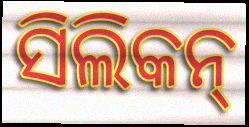
ସିଲିକନ୍